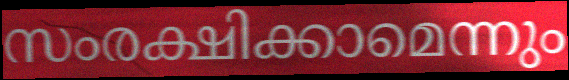
സംരക്ഷിക്കാമെന്നും